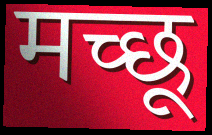
मच्छू